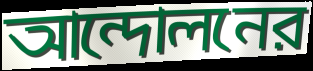
আন্দোলনের